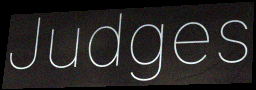
Judges